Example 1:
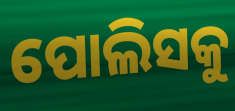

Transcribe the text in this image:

ପୋଲିସକୁ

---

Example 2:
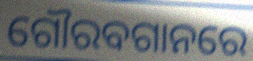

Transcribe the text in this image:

ଗୌରବଗାନରେ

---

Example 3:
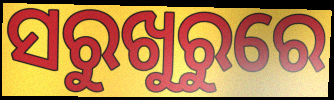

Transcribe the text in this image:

ସରୁଖୁରୁରେ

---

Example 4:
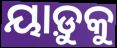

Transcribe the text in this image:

ୟାଡ଼ୁକୁ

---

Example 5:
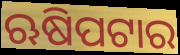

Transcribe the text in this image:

ଋଷିପଟାର